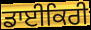
ਡਾਈਕਿਰੀ